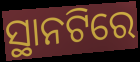
ସ୍ଥାନଟିରେ